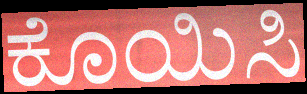
ಕೊಯಿಸಿ